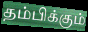
தம்பிக்கும்